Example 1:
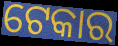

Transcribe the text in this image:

ଟେକାର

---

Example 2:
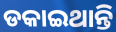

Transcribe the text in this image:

ଡକାଇଥାନ୍ତି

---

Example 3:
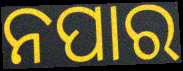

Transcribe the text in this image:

ନପାର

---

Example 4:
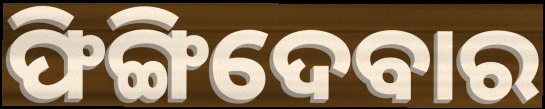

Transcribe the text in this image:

ଫିଙ୍ଗିଦେବାର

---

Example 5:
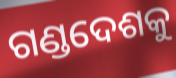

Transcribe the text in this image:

ଗଣ୍ଡଦେଶକୁ